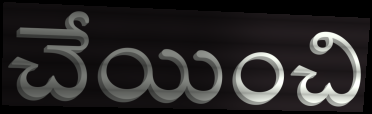
చేయించి